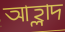
আহ্লাদ